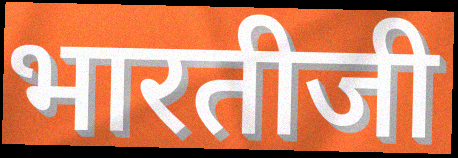
भारतीजी